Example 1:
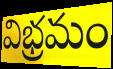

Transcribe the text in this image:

విభ్రమం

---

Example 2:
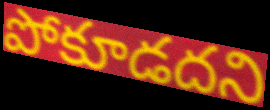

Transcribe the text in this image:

పోకూడదని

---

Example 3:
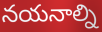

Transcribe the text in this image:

నయనాల్ని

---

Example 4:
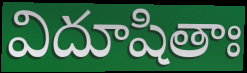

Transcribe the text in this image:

విదూషితాః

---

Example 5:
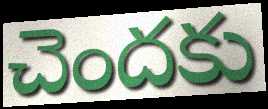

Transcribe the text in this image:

చెందకు